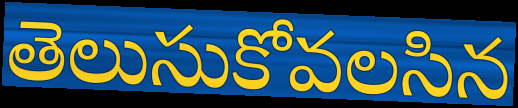
తెలుసుకోవలసిన